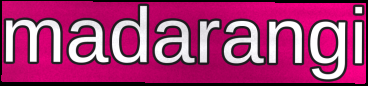
madarangi